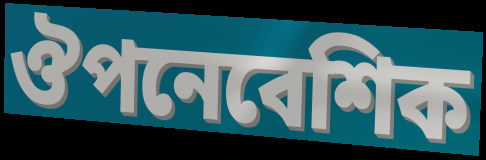
ঔপনেবেশিক